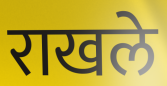
राखले